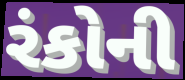
રંકોની